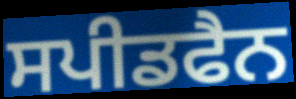
ਸਪੀਡਫੈਨ